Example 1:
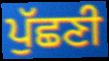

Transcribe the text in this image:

ਪੁੱਛਣੀ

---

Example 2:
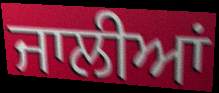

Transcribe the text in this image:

ਜਾਲੀਆਂ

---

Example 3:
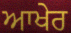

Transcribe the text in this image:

ਆਖੇਰ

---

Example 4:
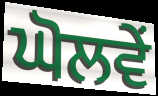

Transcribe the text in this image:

ਘੋਲਵੇਂ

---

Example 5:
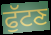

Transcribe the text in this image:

ਫੁੱਟਣ